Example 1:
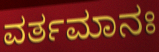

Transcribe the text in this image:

ವರ್ತಮಾನಃ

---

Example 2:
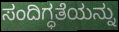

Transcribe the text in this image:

ಸಂದಿಗ್ಧತೆಯನ್ನು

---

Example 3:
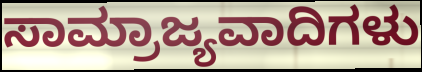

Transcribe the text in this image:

ಸಾಮ್ರಾಜ್ಯವಾದಿಗಳು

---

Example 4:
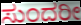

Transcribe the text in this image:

ಸುಂದರೀ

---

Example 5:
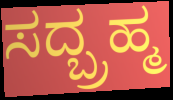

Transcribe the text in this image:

ಸದ್ಬ್ರಹ್ಮ